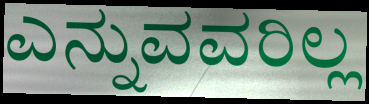
ಎನ್ನುವವರಿಲ್ಲ